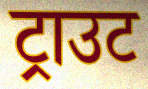
ट्राउट